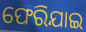
ଫେରିଯାଇ